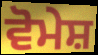
ਵੋਮੇਸ਼